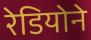
रेडियोने